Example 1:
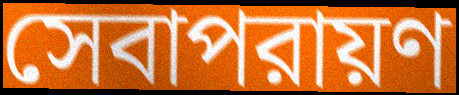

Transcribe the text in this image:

সেবাপরায়ণ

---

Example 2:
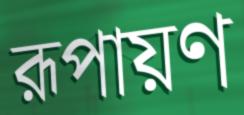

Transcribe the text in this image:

রূপায়ণ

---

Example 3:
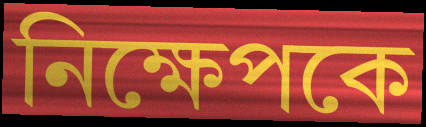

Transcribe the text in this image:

নিক্ষেপকে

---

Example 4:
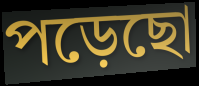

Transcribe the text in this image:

পড়েছো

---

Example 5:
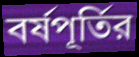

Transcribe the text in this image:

বর্ষপূর্তির